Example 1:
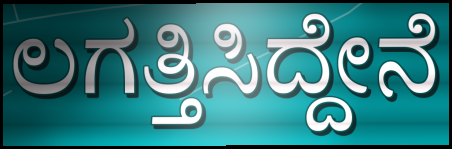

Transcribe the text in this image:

ಲಗತ್ತಿಸಿದ್ದೇನೆ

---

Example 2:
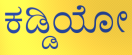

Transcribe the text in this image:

ಕಡ್ಡಿಯೋ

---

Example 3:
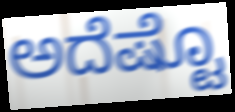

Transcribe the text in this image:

ಅದೆಷ್ಟೊ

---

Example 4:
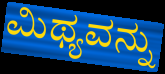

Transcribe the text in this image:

ಮಿಥ್ಯವನ್ನು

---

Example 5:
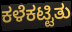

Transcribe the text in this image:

ಕಳೆಕಟ್ಟಿತು